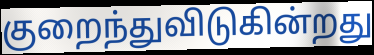
குறைந்துவிடுகின்றது